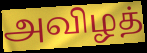
அவிழத்